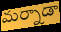
మర్నాడా